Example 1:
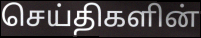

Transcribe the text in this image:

செய்திகளின்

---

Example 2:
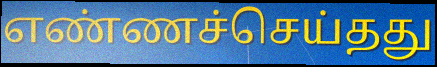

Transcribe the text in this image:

எண்ணச்செய்தது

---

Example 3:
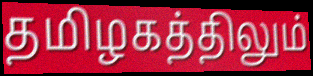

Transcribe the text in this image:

தமிழகத்திலும்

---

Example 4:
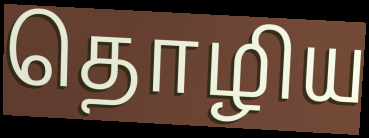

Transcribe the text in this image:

தொழிய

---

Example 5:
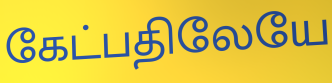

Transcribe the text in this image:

கேட்பதிலேயே